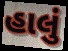
હાલું